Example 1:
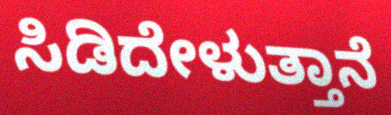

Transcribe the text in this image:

ಸಿಡಿದೇಳುತ್ತಾನೆ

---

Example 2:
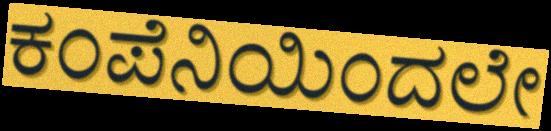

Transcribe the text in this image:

ಕಂಪೆನಿಯಿಂದಲೇ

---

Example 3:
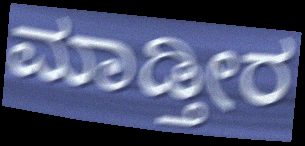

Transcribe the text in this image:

ಮಾಡ್ತೀರ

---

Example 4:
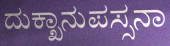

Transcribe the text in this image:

ದುಕ್ಖಾನುಪಸ್ಸನಾ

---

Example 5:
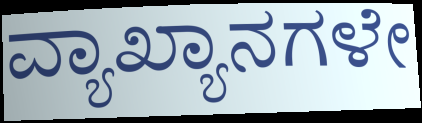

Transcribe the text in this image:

ವ್ಯಾಖ್ಯಾನಗಳೇ